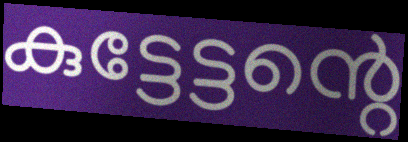
കുട്ടേട്ടന്റെ